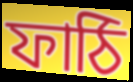
ফাঠি